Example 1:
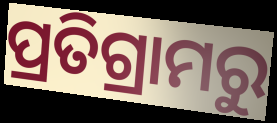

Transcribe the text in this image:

ପ୍ରତିଗ୍ରାମରୁ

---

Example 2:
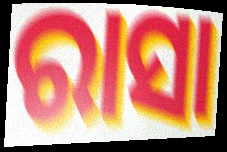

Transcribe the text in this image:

ରାସା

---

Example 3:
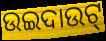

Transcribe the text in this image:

ଉଇଦାଉଟ୍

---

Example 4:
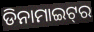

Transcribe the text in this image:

ଡିନାମାଇଟ୍‌ର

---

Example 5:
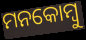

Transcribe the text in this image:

ମନକୋମ୍ବୁ